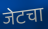
जेटचा